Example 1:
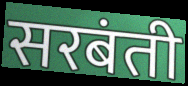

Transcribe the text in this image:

सरबंती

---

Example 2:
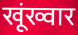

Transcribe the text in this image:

खूंख्वार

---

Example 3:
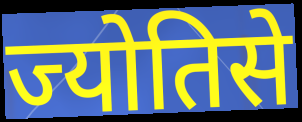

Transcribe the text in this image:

ज्योतिसे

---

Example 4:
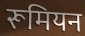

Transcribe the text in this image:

रूमियन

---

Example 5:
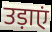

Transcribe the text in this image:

उड़ाएं